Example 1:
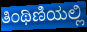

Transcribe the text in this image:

ತಿಂಥಿಣಿಯಲ್ಲಿ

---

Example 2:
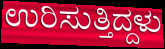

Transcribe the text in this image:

ಉರಿಸುತ್ತಿದ್ದಳು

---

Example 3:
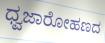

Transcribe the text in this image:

ಧ್ವಜಾರೋಹಣದ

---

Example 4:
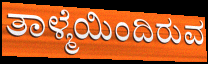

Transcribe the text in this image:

ತಾಳ್ಮೆಯಿಂದಿರುವ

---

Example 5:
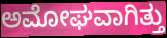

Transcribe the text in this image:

ಅಮೋಘವಾಗಿತ್ತು